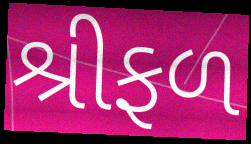
શ્રીફળ